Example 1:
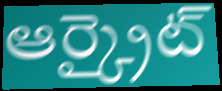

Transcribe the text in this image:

ఆర్క్రైట్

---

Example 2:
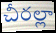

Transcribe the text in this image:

చీరల్లా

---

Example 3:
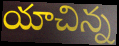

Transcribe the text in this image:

యాచిన్న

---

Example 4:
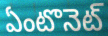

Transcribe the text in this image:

ఏంటొనెట్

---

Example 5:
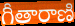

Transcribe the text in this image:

గీతారాణి